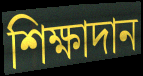
শিক্ষাদান